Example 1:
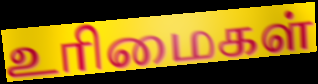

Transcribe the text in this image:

உரிமைகள்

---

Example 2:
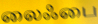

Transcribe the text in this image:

லைஃபை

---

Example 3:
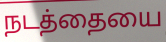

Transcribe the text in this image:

நடத்தையை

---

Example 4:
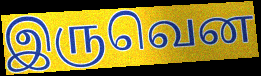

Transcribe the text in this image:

இருவென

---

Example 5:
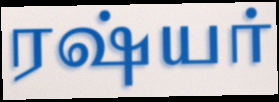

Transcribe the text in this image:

ரஷ்யர்